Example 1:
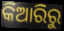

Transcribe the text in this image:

କିଆରିରୁ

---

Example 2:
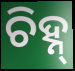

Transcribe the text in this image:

ଚିହ୍ନ୍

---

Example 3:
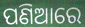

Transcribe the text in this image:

ପଣିଆରେ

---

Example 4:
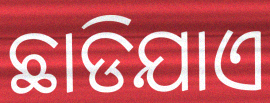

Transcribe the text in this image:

ଛାଡିଯାଏ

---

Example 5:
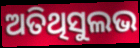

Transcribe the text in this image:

ଅତିଥିସୁଲଭ